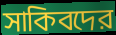
সাকিবদের